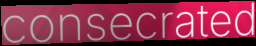
consecrated